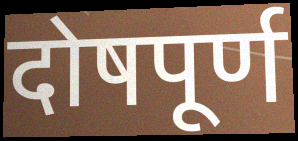
दोषपूर्ण